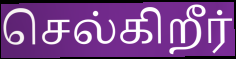
செல்கிறீர்